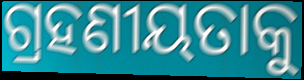
ଗ୍ରହଣୀୟତାକୁ